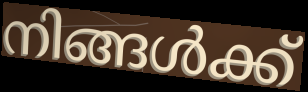
നിങ്ങൾക്ക്